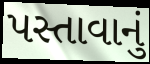
પસ્તાવાનું